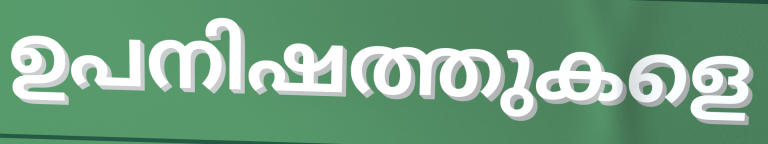
ഉപനിഷത്തുകളെ